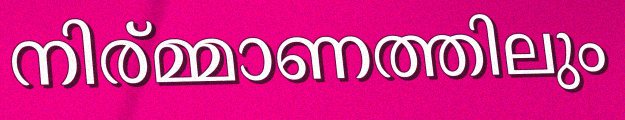
നിര്മ്മാണത്തിലും